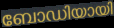
ബോഡിയായി